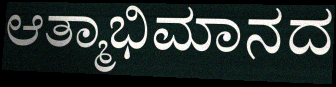
ಆತ್ಮಾಭಿಮಾನದ